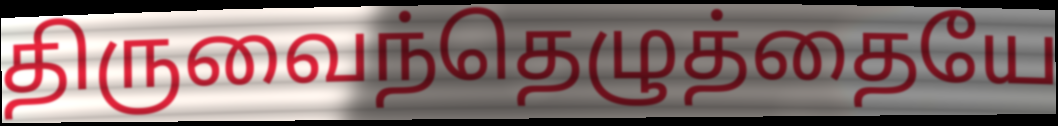
திருவைந்தெழுத்தையே